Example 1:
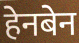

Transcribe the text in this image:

हेनबेन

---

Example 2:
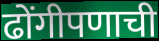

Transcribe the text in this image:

ढोंगीपणाची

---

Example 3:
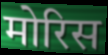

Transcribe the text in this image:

मोरिस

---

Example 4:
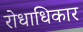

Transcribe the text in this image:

रोधाधिकार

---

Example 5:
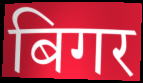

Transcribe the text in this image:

बिगर